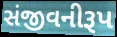
સંજીવનીરૂપ